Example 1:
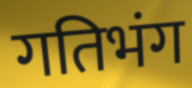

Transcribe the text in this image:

गतिभंग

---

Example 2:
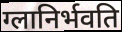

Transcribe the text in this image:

ग्लानिर्भवति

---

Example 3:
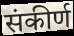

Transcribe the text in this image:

संकीर्ण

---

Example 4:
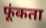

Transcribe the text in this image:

फूंकता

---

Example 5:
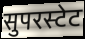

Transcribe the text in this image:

सुपरस्टेट